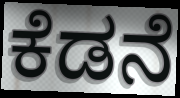
ಕೆಡನೆ